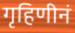
गृहिणीनं